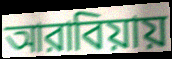
আরাবিয়ায়